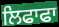
ਲਿਫਾਫਾ